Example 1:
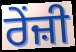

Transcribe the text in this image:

ਰੇਂਜ਼ੀ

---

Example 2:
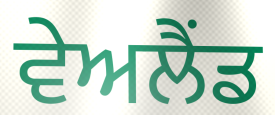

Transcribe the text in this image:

ਵੇਅਲੈਂਡ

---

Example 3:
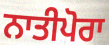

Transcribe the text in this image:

ਨਾਤੀਪੋਰਾ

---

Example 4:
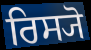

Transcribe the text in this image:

ਰਿਸ੍ਯੋ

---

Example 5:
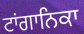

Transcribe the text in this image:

ਟਾਂਗਾਨਿਕਾ